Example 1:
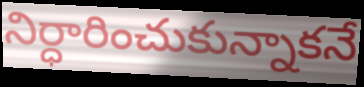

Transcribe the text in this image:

నిర్ధారించుకున్నాకనే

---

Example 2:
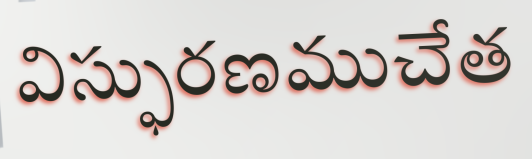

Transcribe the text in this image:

విస్ఫురణముచేత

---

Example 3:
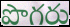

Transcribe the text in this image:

పొగరు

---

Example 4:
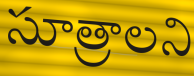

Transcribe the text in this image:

సూత్రాలని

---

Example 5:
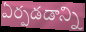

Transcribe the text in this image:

ఏర్పడడాన్ని